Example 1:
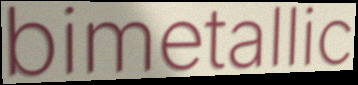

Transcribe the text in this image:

bimetallic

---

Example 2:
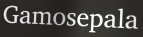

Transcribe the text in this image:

Gamosepala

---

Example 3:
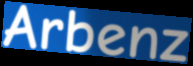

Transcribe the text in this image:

Arbenz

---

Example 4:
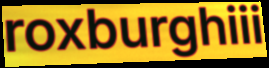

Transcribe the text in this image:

roxburghiii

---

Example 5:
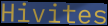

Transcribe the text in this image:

Hivites